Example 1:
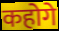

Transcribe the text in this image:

कहोगे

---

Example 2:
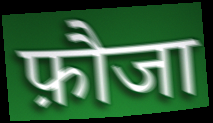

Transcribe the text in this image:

फ़ौजा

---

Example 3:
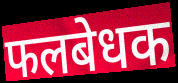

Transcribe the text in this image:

फलबेधक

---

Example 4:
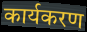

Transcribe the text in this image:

कार्यकरण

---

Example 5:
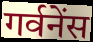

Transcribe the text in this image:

गर्वनेंस